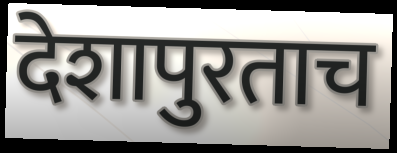
देशापुरताच